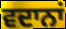
ਵਦਾਨਾਂ